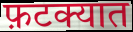
फ़टक्यात